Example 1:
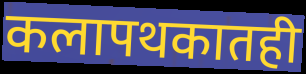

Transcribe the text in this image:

कलापथकातही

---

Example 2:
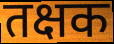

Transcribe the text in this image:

तक्षक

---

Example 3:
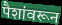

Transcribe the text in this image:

पैशांवरून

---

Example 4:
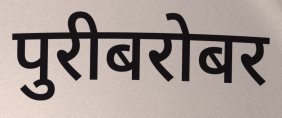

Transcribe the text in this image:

पुरीबरोबर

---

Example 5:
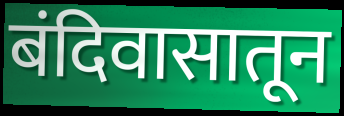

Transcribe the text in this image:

बंदिवासातून